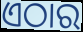
ଏଠାର